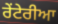
ਰੇਂਟੇਰੀਆ